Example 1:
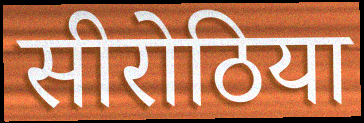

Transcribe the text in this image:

सीरोठिया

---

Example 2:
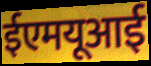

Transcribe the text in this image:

ईएमयूआई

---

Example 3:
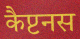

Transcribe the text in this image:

कैप्टनस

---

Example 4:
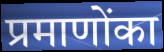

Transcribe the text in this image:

प्रमाणोंका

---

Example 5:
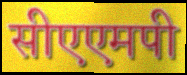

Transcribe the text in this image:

सीएएमपी